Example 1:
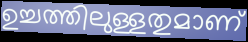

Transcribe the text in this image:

ഉച്ചത്തിലുള്ളതുമാണ്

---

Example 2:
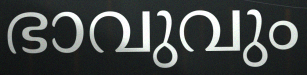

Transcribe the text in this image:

ഭാവുവും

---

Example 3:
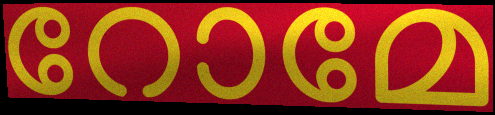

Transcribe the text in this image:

റോമേ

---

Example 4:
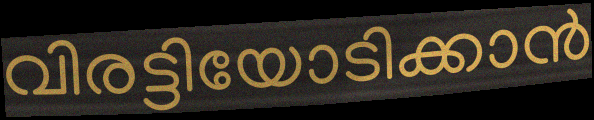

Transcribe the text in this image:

വിരട്ടിയോടിക്കാൻ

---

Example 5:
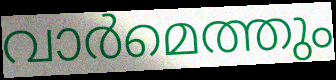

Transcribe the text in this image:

വാർമെത്തും